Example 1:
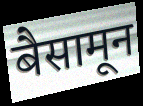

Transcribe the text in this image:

बैसामून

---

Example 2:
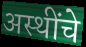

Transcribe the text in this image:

अस्थींचे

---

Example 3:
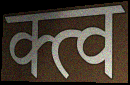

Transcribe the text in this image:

क्त्व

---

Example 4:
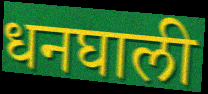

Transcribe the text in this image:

धनघाली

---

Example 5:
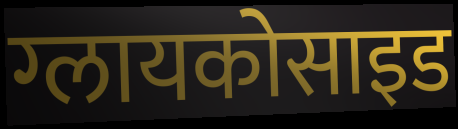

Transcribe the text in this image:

ग्लायकोसाइड